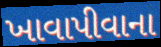
ખાવાપીવાના